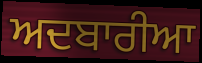
ਅਦਬਾਰੀਆ